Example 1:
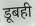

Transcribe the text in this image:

डूबही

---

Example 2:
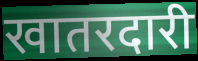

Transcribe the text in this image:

खातरदारी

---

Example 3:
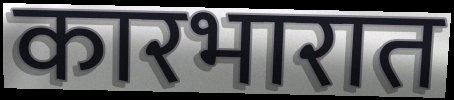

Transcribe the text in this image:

कारभारात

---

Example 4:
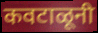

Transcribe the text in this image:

कवटाळूनी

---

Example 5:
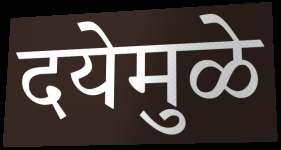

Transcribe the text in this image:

दयेमुळे